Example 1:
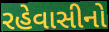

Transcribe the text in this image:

રહેવાસીનો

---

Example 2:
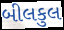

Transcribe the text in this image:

બીલકુલ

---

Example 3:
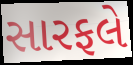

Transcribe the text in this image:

સારફલે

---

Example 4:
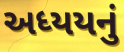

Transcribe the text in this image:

અધ્યયનું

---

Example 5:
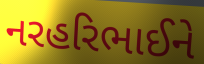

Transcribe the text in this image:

નરહરિભાઈને